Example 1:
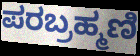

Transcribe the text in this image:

ಪರಬ್ರಹ್ಮಣಿ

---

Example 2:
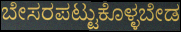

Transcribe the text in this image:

ಬೇಸರಪಟ್ಟುಕೊಳ್ಳಬೇಡ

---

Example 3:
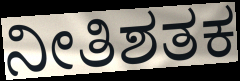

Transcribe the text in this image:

ನೀತಿಶತಕ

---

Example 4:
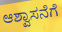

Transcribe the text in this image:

ಆಶ್ವಾಸನೆಗೆ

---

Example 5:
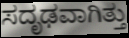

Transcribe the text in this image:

ಸದೃಢವಾಗಿತ್ತು